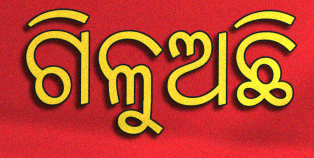
ଗିଳୁଅଛି